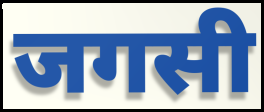
जगसी